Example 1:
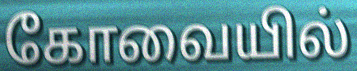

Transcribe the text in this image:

கோவையில்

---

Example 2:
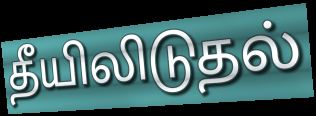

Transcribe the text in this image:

தீயிலிடுதல்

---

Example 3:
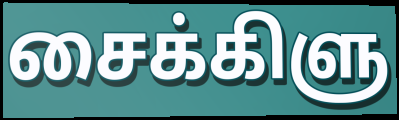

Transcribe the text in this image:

சைக்கிளு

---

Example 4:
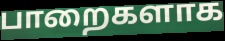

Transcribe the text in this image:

பாறைகளாக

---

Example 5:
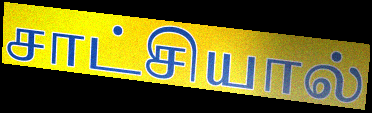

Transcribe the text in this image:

சாட்சியால்